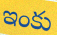
ఇంకు